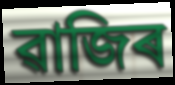
ৱাজিৰ